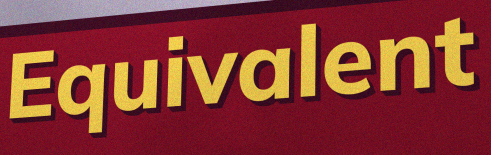
Equivalent